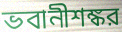
ভবানীশঙ্কর